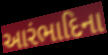
આરંભાદિના